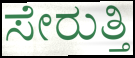
ಸೇರುತ್ತಿ